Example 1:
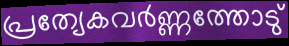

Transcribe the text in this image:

പ്രത്യേകവർണ്ണത്തോടു്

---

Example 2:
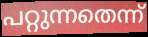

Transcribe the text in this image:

പറ്റുന്നതെന്ന്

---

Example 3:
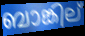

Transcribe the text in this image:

ബാങ്കില്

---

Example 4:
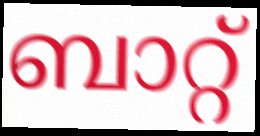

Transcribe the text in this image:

ബാറ്റ്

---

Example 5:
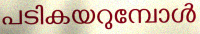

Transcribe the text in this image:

പടികയറുമ്പോൾ